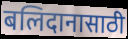
बलिदानासाठी